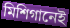
মিশিগানেই